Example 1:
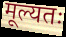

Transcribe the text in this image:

मूल्यतः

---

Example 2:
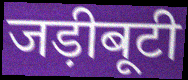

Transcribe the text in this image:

जड़ीबूटी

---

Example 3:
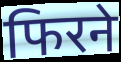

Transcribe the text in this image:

फिरने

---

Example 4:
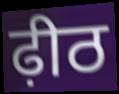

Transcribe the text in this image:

ढ़ीठ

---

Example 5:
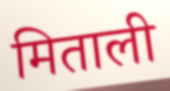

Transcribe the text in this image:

मिताली